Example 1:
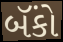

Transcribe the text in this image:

બૅંકો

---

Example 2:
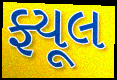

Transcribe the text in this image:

ફ્યૂલ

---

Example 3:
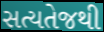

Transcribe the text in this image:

સત્યતેજથી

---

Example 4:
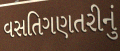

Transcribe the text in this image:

વસતિગણતરીનું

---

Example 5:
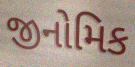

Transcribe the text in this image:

જીનોમિક